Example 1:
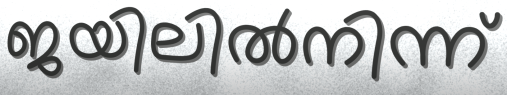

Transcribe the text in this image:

ജയിലിൽനിന്ന്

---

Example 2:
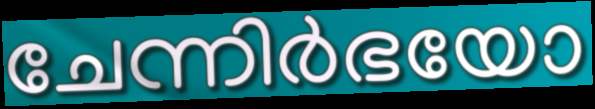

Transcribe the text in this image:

ചേന്നിർഭയോ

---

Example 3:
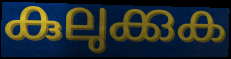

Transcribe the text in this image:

കുലുക്കുക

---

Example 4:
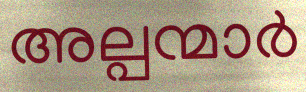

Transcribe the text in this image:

അല്പന്മാർ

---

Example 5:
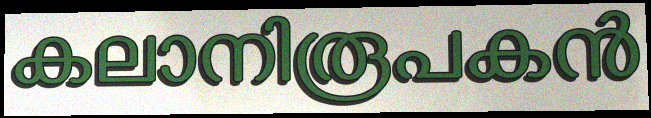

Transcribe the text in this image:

കലാനിരൂപകൻ